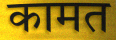
कामत